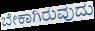
ಬೇಕಾಗಿರುವುದು